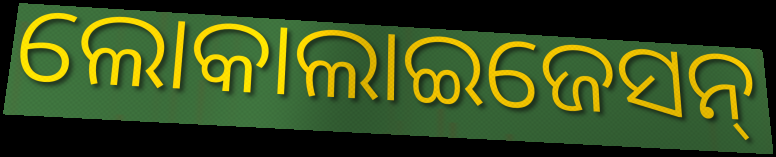
ଲୋକାଲାଇଜେସନ୍